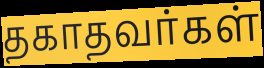
தகாதவர்கள்